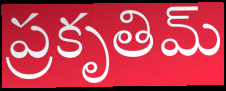
ప్రకృతిమ్